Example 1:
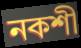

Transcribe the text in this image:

নকশী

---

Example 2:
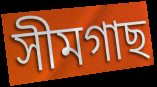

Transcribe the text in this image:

সীমগাছ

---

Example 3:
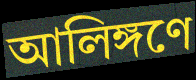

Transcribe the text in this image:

আলিঙ্গণে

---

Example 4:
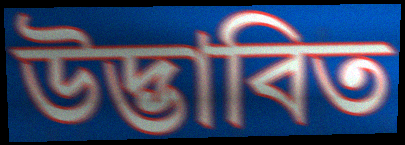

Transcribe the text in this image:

উদ্ভাবিত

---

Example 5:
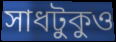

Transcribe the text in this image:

সাধটুকুও